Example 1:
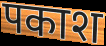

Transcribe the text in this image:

पकाश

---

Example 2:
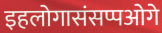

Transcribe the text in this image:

इहलोगासंसप्पओगे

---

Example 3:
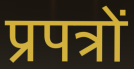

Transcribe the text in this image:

प्रपत्रों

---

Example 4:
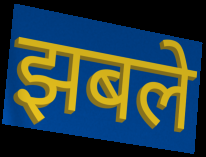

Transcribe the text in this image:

झबले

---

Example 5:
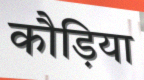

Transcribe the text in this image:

कौड़िया